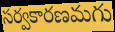
సర్వకారణమగు